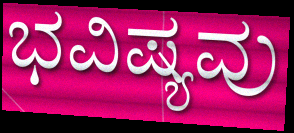
ಭವಿಷ್ಯವು